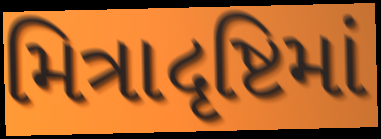
મિત્રાદૃષ્ટિમાં